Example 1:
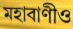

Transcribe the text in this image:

মহাবাণীও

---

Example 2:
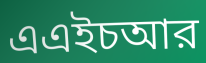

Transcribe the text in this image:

এএইচআর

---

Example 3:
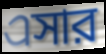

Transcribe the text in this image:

এসার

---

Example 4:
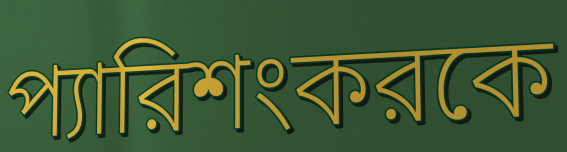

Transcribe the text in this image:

প্যারিশংকরকে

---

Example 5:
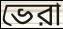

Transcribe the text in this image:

ভেরা